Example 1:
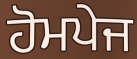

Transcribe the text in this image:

ਹੋਮਪੇਜ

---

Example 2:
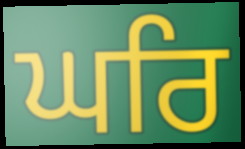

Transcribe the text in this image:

ਘਰਿ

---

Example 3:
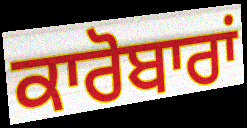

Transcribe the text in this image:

ਕਾਰੋਬਾਰਾਂ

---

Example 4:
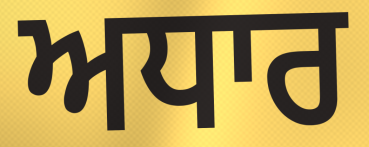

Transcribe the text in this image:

ਅਧਾਰ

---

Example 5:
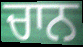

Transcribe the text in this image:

ਚਾਨ